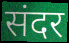
संदर